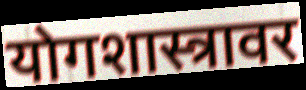
योगशास्त्रावर